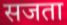
सजता